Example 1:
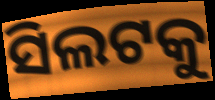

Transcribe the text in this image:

ସିଲଟକୁ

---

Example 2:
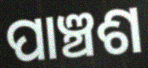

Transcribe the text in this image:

ପାଞ୍ଚଶ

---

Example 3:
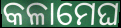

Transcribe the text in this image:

କଳାମେଘ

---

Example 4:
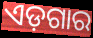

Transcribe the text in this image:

ଏଡ଼ଗାର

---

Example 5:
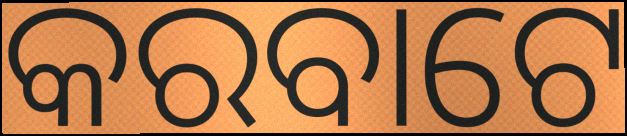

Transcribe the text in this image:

କରବାଟେ